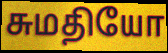
சுமதியோ